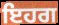
ਇਹਗ